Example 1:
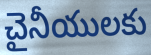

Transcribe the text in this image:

చైనీయులకు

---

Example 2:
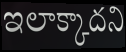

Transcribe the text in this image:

ఇలాక్కాదని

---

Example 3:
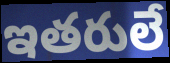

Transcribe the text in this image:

ఇతరులే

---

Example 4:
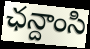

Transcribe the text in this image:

ఛన్దాంసి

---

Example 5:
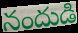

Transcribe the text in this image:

నందుడి